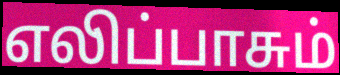
எலிப்பாசும்